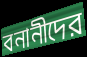
বনানীদের